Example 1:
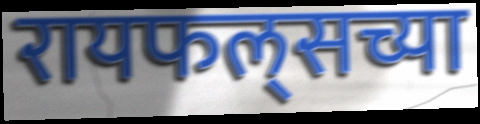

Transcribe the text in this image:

रायफल्सच्या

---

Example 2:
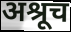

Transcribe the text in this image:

अश्रूच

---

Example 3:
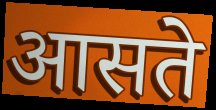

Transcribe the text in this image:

आसते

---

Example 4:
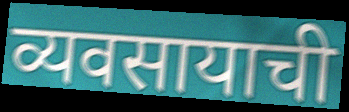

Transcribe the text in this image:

व्यवसायाची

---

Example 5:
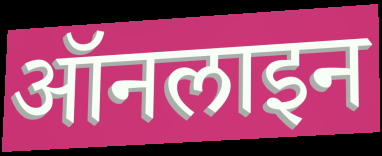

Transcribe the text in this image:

ऑनलाइन